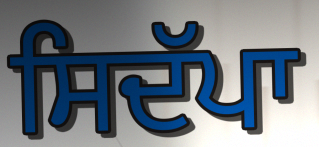
ਸਿਦੱਪਾ